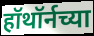
हॉथॉर्नच्या